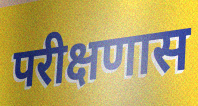
परीक्षणास